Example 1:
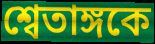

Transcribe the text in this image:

শ্বেতাঙ্গকে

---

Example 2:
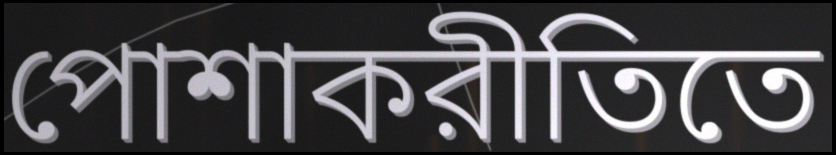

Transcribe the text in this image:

পোশাকরীতিতে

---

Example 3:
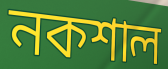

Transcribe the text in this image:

নকশাল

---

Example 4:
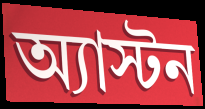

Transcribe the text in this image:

অ্যাস্টন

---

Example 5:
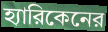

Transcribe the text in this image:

হ্যারিকেনের